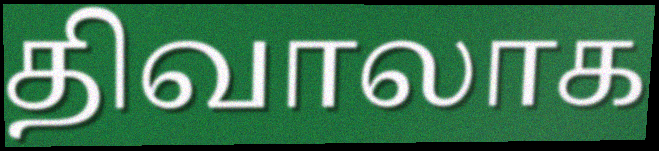
திவாலாக